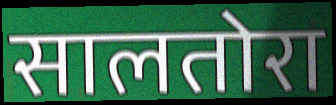
सालतोरा